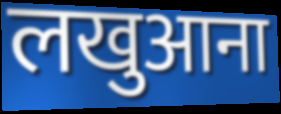
लखुआना